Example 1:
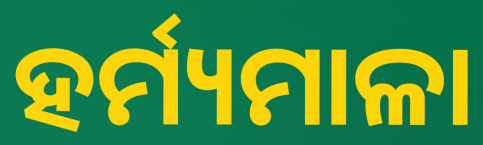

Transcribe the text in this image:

ହର୍ମ୍ୟମାଳା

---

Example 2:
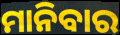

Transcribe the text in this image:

ମାନିବାର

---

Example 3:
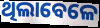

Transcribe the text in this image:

ଥିଲାବେଳେ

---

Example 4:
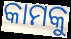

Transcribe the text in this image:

କାମକୁ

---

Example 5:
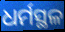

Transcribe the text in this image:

ଧର୍ମସ୍ଥଳ